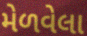
મેળવેલા